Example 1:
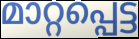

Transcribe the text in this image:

മാറ്റപ്പെട്ട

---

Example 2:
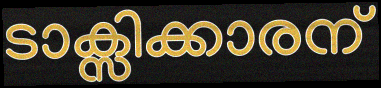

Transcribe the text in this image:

ടാക്സിക്കാരന്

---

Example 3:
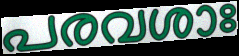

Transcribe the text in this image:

പരവശാഃ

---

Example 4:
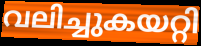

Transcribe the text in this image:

വലിച്ചുകയറ്റി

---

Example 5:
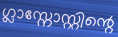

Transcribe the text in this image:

ഗ്ലാസ്നോസ്റ്റിന്റെ